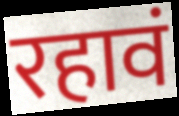
रहावं